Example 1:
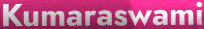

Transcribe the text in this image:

Kumaraswami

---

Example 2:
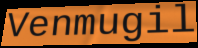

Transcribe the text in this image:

Venmugil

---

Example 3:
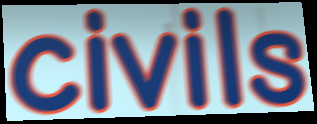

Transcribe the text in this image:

civils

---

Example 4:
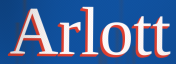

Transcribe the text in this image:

Arlott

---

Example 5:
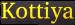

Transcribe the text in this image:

Kottiya